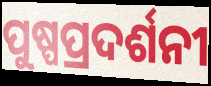
ପୁଷ୍ପପ୍ରଦର୍ଶନୀ